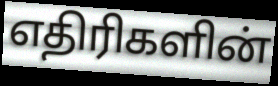
எதிரிகளின்